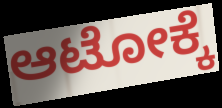
ಆಟೋಕ್ಕೆ